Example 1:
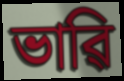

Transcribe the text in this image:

ভাৱি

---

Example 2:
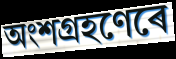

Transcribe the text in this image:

অংশগ্ৰহণেৰে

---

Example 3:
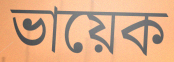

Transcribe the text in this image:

ভায়েক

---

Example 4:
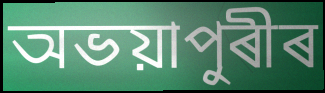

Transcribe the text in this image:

অভয়াপুৰীৰ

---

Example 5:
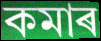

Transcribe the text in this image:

কমাৰ